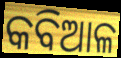
କବିଆଳ